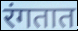
रंगतात